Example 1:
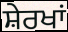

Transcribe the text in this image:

ਸ਼ੇਰਖਾਂ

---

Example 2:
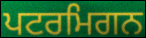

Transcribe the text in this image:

ਪਟਰਮਿਗਨ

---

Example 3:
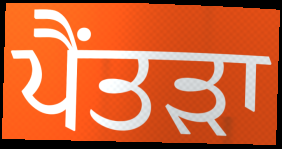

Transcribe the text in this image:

ਪੈਂਤੜਾ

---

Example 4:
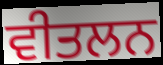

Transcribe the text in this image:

ਵੀਤਲਨ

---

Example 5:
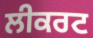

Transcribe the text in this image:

ਲੀਕਰਟ